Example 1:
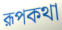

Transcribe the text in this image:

রূপকথা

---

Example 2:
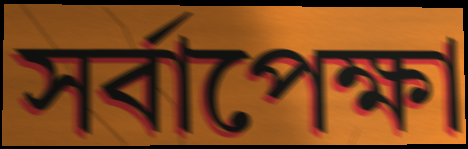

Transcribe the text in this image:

সর্বাপেক্ষা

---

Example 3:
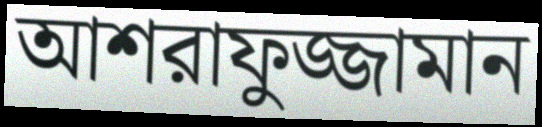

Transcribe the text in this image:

আশরাফুজ্জামান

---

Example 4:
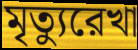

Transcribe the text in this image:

মৃত্যুরেখা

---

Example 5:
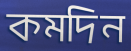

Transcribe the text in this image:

কমদিন